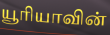
யூரியாவின்